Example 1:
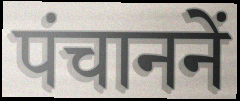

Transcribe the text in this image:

पंचाननें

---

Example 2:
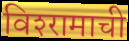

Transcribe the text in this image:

विश्रामाची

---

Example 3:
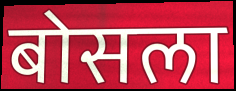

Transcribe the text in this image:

बोसला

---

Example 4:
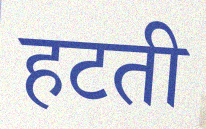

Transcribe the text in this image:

हटती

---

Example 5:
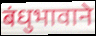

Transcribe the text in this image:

बंधुभावाने